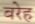
बरेह